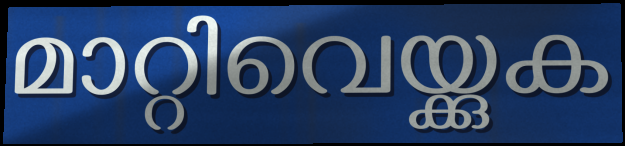
മാറ്റിവെയ്ക്കുക